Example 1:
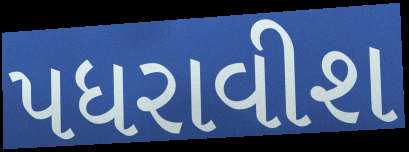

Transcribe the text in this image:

પધરાવીશ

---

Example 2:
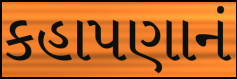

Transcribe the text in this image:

કહાપણાનં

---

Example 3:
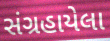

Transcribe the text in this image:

સંગ્રહાયેલા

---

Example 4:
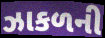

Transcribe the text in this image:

ઝાકળની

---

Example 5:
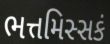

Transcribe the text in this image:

ભત્તમિસ્સકં